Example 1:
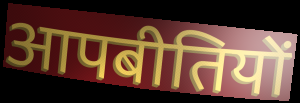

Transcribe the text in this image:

आपबीतियों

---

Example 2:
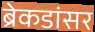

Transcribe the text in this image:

ब्रेकडांसर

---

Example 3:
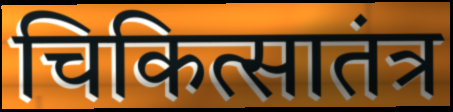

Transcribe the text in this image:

चिकित्सातंत्र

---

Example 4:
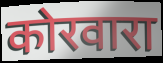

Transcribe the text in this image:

कोरवारा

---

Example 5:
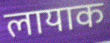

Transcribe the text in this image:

लायाक